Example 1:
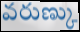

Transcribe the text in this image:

వరుణ్కు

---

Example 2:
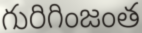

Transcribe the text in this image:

గురిగింజంత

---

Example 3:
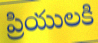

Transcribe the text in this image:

ప్రియులకి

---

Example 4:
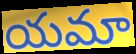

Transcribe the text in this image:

యమా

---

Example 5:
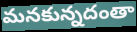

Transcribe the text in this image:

మనకున్నదంతా